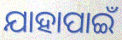
ଯାହାପାଇଁ